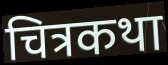
चित्रकथा